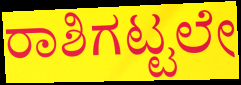
ರಾಶಿಗಟ್ಟಲೇ